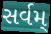
સર્વમ્